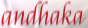
andhaka